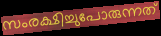
സംരക്ഷിച്ചുപോരുന്നത്